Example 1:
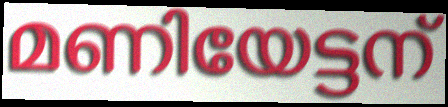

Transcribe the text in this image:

മണിയേട്ടന്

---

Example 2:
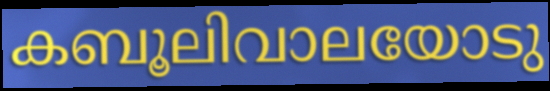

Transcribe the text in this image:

കബൂലിവാലയോടു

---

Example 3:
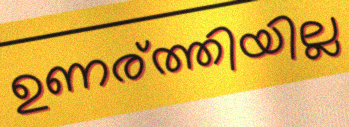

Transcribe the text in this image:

ഉണര്ത്തിയില്ല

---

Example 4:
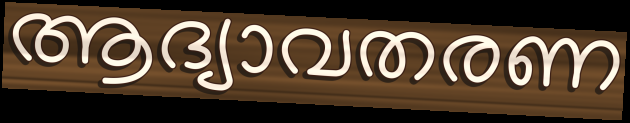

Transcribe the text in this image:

ആദ്യാവതരണ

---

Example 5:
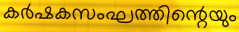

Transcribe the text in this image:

കർഷകസംഘത്തിന്റെയും